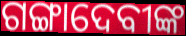
ଗଙ୍ଗାଦେବୀଙ୍କ